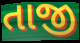
તાજી